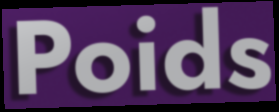
Poids